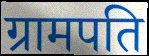
ग्रामपति